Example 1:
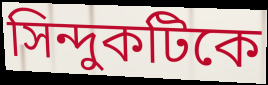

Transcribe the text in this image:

সিন্দুকটিকে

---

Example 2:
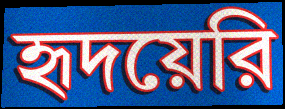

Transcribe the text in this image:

হৃদয়েরি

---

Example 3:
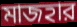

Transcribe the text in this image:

মাজহার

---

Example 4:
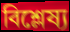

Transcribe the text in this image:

বিশ্লেষ্য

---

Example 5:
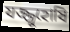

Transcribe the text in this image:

যজ্জুহোষি